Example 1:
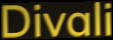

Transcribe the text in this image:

Divali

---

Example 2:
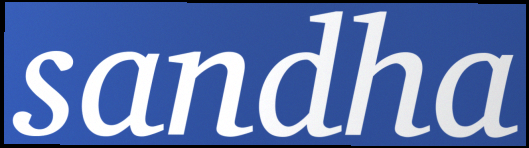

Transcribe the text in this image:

sandha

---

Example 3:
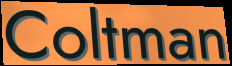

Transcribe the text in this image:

Coltman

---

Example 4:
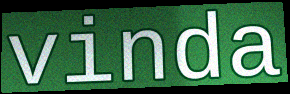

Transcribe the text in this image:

vinda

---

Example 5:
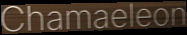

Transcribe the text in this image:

Chamaeleon